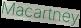
Macartney